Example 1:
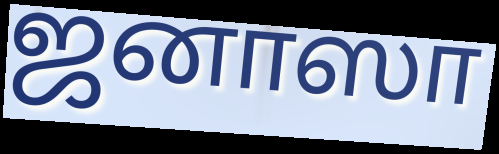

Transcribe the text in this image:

ஜனாஸா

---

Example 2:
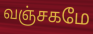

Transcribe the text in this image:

வஞ்சகமே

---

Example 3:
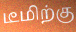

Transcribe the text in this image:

டீமிற்கு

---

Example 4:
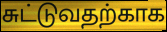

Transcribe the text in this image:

சுட்டுவதற்காக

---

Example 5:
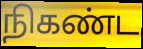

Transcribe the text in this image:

நிகண்ட